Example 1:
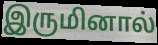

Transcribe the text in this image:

இருமினால்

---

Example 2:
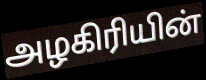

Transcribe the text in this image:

அழகிரியின்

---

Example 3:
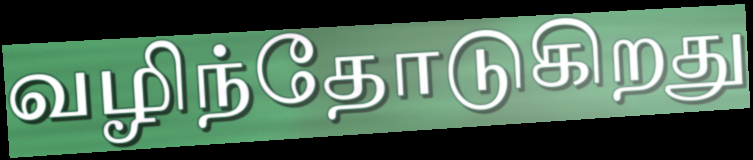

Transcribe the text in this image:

வழிந்தோடுகிறது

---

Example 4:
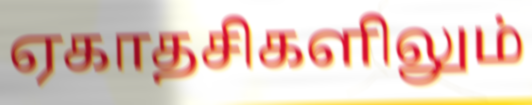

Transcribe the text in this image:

ஏகாதசிகளிலும்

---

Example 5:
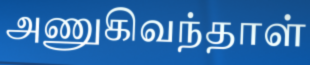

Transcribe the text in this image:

அணுகிவந்தாள்